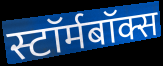
स्टॉर्मबॉक्स